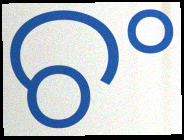
ଚଂ